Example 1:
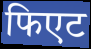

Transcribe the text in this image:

फिएट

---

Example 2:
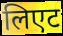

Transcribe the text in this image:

लिएट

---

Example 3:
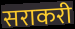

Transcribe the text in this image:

सराकरी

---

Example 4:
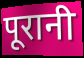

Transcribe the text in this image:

पूरानी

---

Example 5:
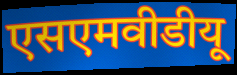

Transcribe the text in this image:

एसएमवीडीयू